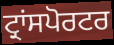
ਟ੍ਰਾਂਸਪੋਰਟਰ